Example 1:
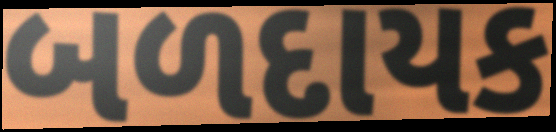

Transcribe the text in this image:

બળદાયક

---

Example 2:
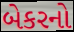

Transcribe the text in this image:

બેકરનો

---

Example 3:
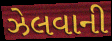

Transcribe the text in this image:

ઝેલવાની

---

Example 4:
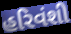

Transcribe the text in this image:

હરિવંશી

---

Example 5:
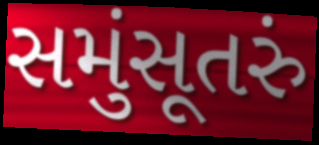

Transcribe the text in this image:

સમુંસૂતરું